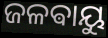
ଜଳଵାୟୁ